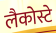
लैकोस्टे